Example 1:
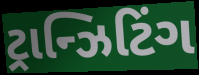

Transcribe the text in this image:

ટ્રાન્ઝિટિંગ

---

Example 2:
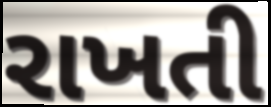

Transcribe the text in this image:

રાખતી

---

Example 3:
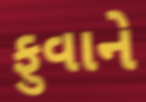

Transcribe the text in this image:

ફુવાને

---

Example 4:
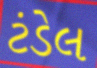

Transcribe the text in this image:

ટંડેલ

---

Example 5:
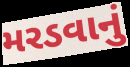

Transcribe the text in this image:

મરડવાનું